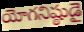
యోగనిష్ఠుడై